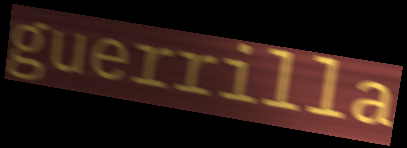
guerrilla